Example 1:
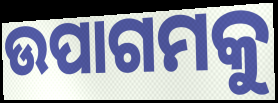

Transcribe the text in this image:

ଉପାଗମକୁ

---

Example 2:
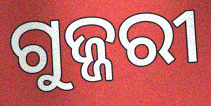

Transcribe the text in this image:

ଗୁଜ୍ଜରୀ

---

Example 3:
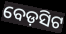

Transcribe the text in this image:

ବେଡ଼ସିଟ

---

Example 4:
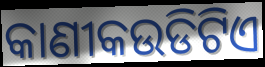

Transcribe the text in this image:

କାଣୀକଉଡିଟିଏ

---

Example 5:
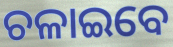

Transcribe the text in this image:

ଚଳାଇବେ